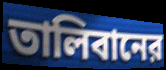
তালিবানের